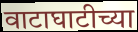
वाटाघाटीच्या